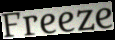
Freeze